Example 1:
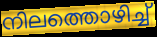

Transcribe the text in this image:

നിലത്തൊഴിച്ച്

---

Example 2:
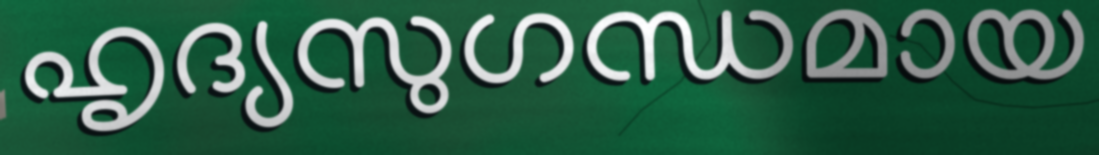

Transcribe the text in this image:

ഹൃദ്യസുഗന്ധമായ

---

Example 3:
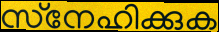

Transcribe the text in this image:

സ്‌നേഹിക്കുക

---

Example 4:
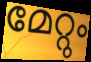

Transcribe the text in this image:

മേറ്റും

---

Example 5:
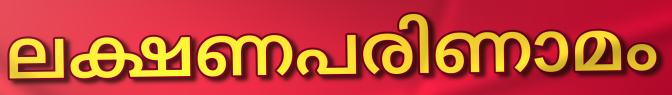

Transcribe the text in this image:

ലക്ഷണപരിണാമം